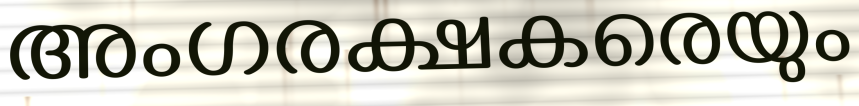
അംഗരക്ഷകരെയും